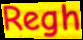
Regh